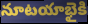
నూటయాభైకి